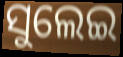
ସୁଲେଇ